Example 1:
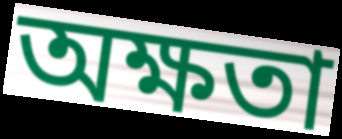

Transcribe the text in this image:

অক্ষতা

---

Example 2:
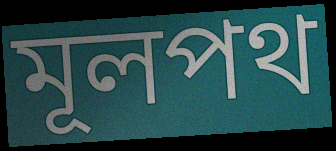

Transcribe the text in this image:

মূলপথ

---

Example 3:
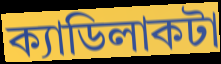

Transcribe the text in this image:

ক্যাডিলাকটা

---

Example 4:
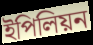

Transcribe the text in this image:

ইপিলিয়ন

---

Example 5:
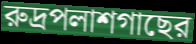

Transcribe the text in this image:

রুদ্রপলাশগাছের